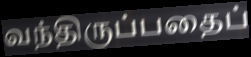
வந்திருப்பதைப்